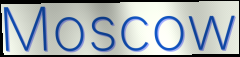
Moscow